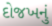
દોજખનું